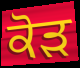
ਕੋੜ